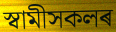
স্বামীসকলৰ